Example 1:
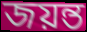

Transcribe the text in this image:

জয়ন্ত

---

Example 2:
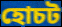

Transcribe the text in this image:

হোচট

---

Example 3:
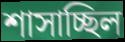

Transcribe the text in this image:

শাসাচ্ছিল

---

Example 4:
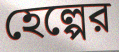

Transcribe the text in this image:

হেল্পের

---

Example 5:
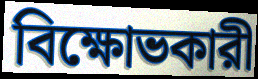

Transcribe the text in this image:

বিক্ষোভকারী